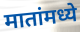
मातांमध्ये